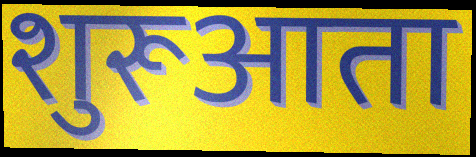
शुरूआता